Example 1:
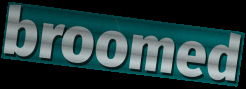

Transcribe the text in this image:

broomed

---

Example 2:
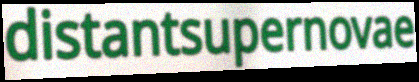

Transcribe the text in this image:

distantsupernovae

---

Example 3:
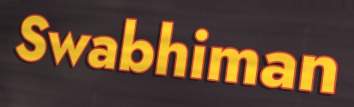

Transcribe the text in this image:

Swabhiman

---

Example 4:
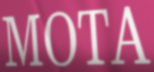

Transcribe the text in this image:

MOTA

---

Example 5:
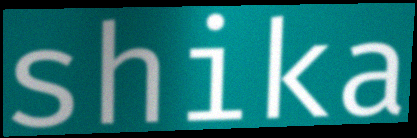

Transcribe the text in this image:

shika